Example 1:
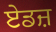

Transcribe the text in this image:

ਏਡਜ਼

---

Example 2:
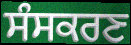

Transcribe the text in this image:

ਸੰਸਕਰਣ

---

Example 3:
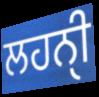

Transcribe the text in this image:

ਲਹਨੑੀ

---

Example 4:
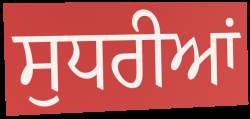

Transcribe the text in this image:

ਸੁਧਰੀਆਂ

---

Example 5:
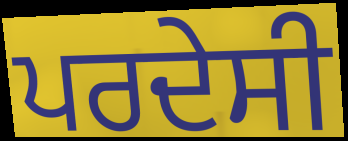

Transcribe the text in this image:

ਪਰਦੇਸੀ